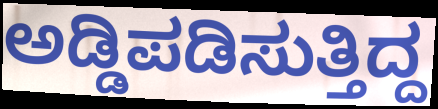
ಅಡ್ಡಿಪಡಿಸುತ್ತಿದ್ದ